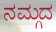
ನಮ್ಗದ